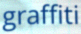
graffiti